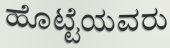
ಹೊಟ್ಟೆಯವರು